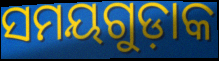
ସମୟଗୁଡ଼ାକ